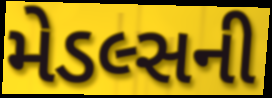
મેડલ્સની